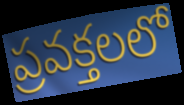
ప్రవక్తలలో